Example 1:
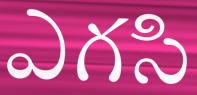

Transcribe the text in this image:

ఎగసి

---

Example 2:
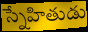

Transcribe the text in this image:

స్నేహితుడు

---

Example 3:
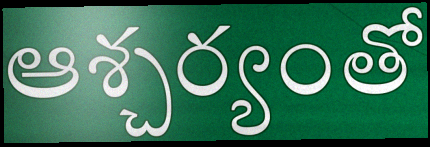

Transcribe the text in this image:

ఆశ్చర్యంతో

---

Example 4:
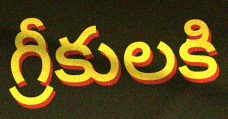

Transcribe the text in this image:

గ్రీకులకి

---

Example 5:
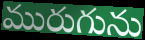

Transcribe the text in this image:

మురుగును